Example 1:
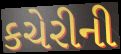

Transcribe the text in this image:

કચેરીની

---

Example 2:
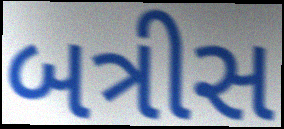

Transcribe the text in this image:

બત્રીસ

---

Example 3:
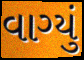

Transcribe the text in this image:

વાગ્યું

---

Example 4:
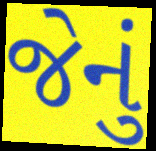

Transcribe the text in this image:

જેનું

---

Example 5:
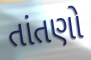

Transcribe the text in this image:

તાંતણો